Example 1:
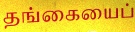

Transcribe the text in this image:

தங்கையைப்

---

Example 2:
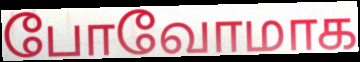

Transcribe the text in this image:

போவோமாக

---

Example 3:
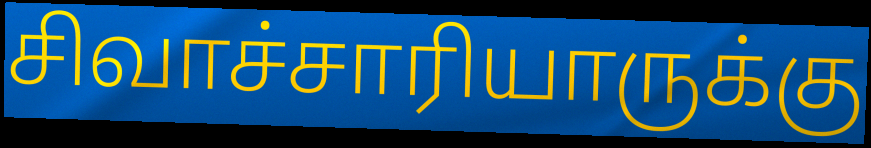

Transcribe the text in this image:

சிவாச்சாரியாருக்கு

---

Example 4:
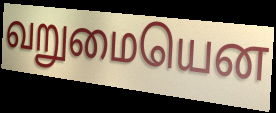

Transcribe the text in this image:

வறுமையென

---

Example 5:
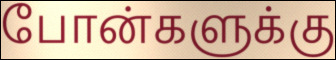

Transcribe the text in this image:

போன்களுக்கு